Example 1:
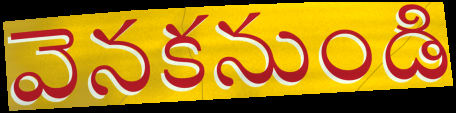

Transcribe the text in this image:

వెనకనుండి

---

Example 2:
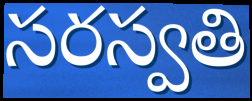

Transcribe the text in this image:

సరస్వతి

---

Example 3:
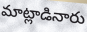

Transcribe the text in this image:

మాట్లాడినారు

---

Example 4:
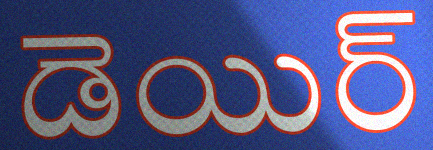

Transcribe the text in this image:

డెయిర్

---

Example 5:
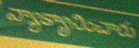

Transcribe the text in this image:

వ్యాక్యానించారు